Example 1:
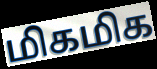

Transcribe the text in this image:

மிகமிக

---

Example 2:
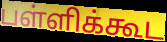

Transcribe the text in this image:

பள்ளிக்கூட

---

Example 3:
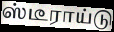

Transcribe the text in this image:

ஸ்டீராய்டு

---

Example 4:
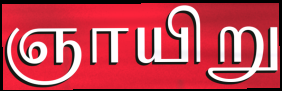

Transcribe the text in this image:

ஞாயிறு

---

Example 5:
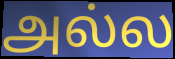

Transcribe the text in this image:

அல்ல